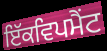
ਇੱਕਵਿਪਮੈਂਟ